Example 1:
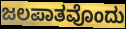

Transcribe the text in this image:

ಜಲಪಾತವೊಂದು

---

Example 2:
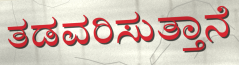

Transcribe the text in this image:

ತಡವರಿಸುತ್ತಾನೆ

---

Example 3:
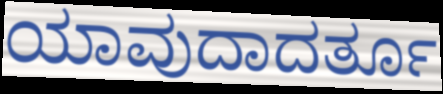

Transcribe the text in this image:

ಯಾವುದಾದರ್ತೂ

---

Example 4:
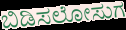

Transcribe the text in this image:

ಬಿಡಿಸಲೋಸುಗ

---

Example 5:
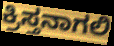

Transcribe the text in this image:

ಕ್ರಿಸ್ತನಾಗಲಿ